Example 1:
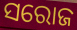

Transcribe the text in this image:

ସରୋଜ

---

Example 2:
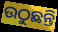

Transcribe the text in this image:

ଉଠୁଛନ୍ତି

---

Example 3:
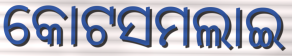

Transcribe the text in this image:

କୋଟସମଲାଇ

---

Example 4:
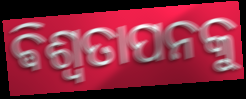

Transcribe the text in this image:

ଵିଶ୍ଵତାପନକୁ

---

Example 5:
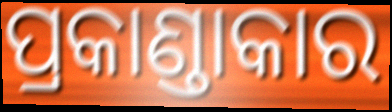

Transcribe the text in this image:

ପ୍ରକାଣ୍ଡାକାର